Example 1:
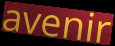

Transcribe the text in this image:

avenir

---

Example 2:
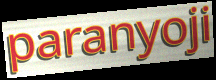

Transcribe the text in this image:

paranyoji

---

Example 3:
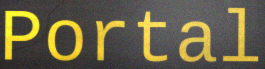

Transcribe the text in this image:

Portal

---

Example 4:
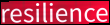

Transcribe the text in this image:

resilience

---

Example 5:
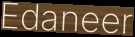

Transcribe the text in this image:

Edaneer